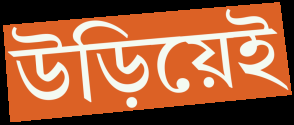
উড়িয়েই